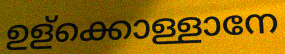
ഉള്ക്കൊള്ളാനേ